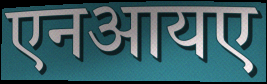
एनआयए